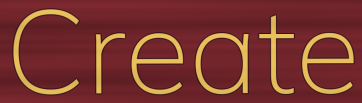
Create